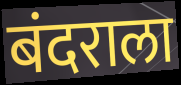
बंदराला